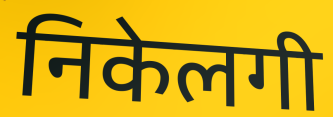
निकेलगी